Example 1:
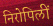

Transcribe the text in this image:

निरोपिलीं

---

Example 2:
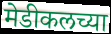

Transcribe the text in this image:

मेडीकलच्या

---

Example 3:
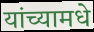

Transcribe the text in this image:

यांच्यामधे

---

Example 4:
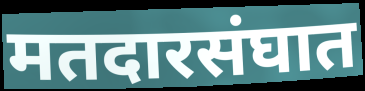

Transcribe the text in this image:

मतदारसंघात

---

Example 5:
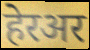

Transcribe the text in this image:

हेरअर